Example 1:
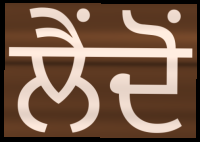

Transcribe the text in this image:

ਲੈਂਦੋਂ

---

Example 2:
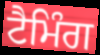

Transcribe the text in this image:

ਟੈਮਿੰਗ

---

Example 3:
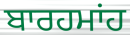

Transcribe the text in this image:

ਬਾਰਹਮਾਂਹ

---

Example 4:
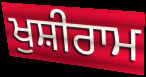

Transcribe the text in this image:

ਖੁਸ਼ੀਰਾਮ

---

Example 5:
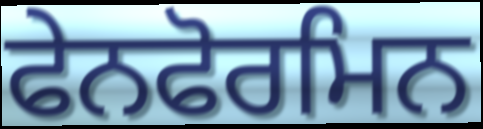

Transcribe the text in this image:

ਫੇਨਫੋਰਮਿਨ